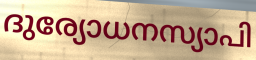
ദുര്യോധനസ്യാപി